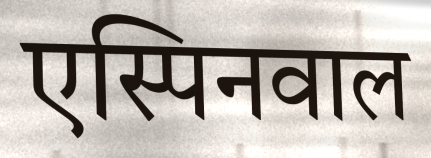
एस्पिनवाल